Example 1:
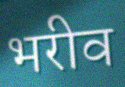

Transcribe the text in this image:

भरीव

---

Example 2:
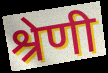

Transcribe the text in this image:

श्रेणी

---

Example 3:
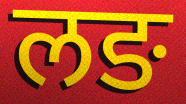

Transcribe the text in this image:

लङ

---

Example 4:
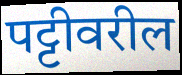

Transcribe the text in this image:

पट्टीवरील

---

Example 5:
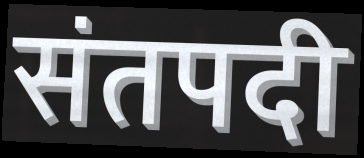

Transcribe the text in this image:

संतपदी